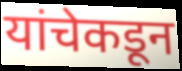
यांचेकडून